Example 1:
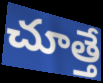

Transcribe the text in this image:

చూత్తే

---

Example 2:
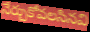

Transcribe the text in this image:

నేర్చుకోవలసినవి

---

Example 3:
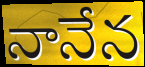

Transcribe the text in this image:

నానేన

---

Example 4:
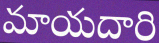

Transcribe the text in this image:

మాయదారి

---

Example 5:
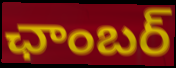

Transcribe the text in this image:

ఛాంబర్